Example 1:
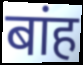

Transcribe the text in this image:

बांह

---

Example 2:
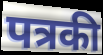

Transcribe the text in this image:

पत्रकी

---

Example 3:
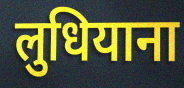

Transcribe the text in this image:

लुधियाना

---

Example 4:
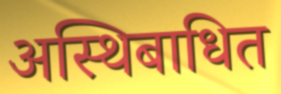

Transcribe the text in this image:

अस्थिबाधित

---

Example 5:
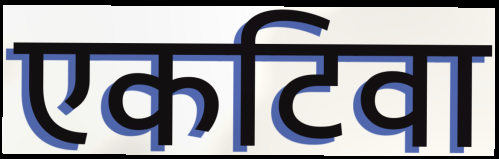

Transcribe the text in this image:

एकटिवा